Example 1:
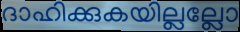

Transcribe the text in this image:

ദാഹിക്കുകയില്ലല്ലോ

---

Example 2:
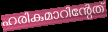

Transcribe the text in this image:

ഹരികുമാറിന്റേത്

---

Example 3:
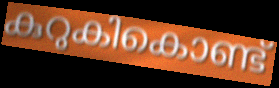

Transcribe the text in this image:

കുറുകികൊണ്ട്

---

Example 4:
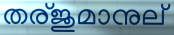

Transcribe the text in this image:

തര്ജുമാനുല്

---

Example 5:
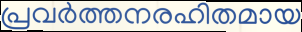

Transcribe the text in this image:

പ്രവർത്തനരഹിതമായ